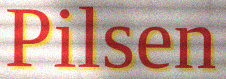
Pilsen